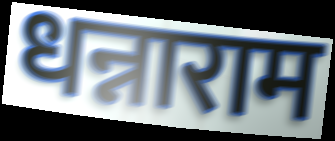
धन्नाराम